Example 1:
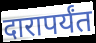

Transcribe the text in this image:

दारापर्यंत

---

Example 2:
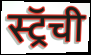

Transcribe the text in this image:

स्ट्रॅची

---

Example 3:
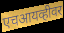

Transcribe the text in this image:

एचआयव्हीवर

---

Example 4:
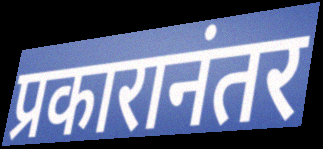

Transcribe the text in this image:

प्रकारानंतर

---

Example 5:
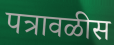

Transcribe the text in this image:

पत्रावळीस